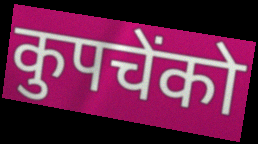
कुपचेंको